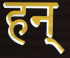
हन्